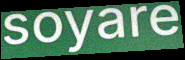
soyare